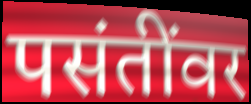
पसंतींवर